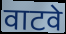
वाटवे